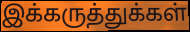
இக்கருத்துக்கள்